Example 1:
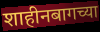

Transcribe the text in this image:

शाहीनबागच्या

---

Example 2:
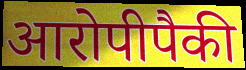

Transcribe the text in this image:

आरोपीपैकी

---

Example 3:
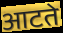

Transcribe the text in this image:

आटते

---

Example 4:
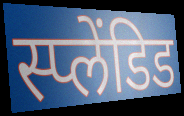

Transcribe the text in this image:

स्प्लेंडिड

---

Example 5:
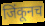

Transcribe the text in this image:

जिंकूनच